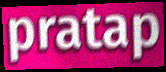
pratap